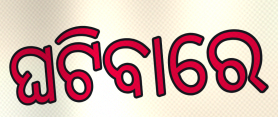
ଘଟିବାରେ